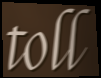
toll